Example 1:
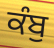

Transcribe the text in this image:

ਕੰਬੁ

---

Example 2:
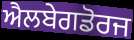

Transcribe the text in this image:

ਐਲਬੇਗਡੋਰਜ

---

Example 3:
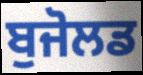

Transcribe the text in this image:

ਬੁਜੋਲਡ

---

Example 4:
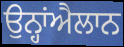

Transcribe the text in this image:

ਉਨ੍ਹਾਂਐਲਾਨ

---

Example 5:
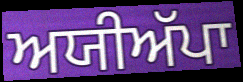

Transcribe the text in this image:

ਅਯੀਅੱਪਾ